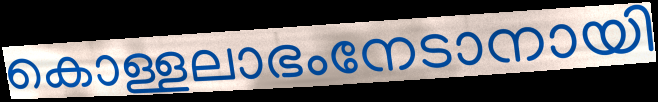
കൊള്ളലാഭംനേടാനായി